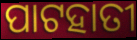
ପାଟହାତୀ